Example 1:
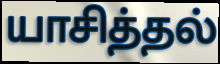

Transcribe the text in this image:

யாசித்தல்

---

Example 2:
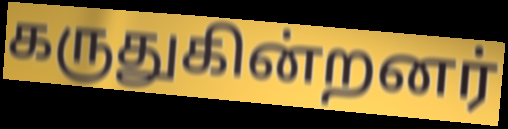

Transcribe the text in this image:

கருதுகின்றனர்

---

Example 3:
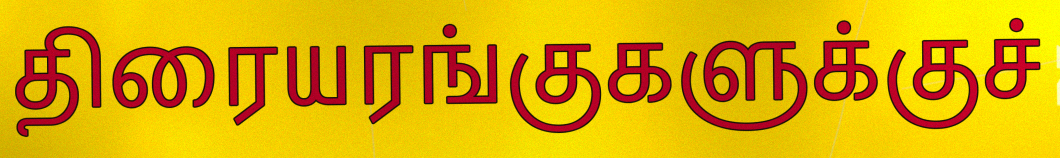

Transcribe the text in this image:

திரையரங்குகளுக்குச்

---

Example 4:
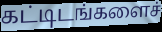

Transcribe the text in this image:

கட்டிடங்களைச்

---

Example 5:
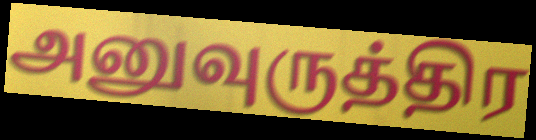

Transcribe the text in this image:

அனுவுருத்திர